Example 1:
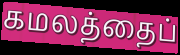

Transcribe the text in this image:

கமலத்தைப்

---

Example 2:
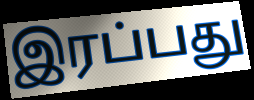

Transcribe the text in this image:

இரப்பது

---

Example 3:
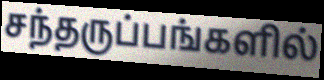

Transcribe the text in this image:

சந்தருப்பங்களில்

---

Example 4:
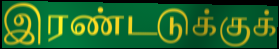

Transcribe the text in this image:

இரண்டடுக்குக்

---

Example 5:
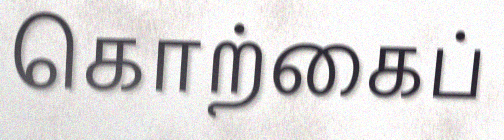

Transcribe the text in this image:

கொற்கைப்